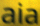
aia